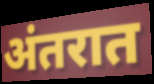
अंतरात